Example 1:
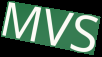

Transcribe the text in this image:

MVS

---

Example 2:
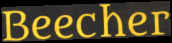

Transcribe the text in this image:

Beecher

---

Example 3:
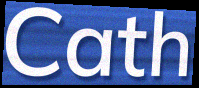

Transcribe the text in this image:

Cath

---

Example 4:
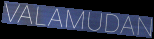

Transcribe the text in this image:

VALAMUDAN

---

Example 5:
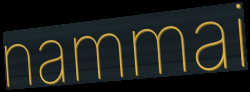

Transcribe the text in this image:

nammai